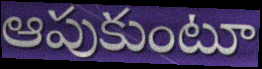
ఆపుకుంటూ